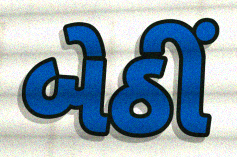
બેઠીં